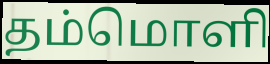
தம்மொளி